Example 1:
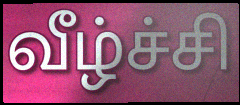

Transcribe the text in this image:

வீழ்ச்சி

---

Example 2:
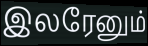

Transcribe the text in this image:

இலரேனும்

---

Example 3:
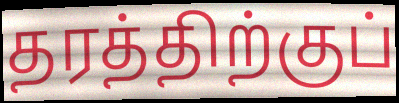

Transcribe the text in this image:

தரத்திற்குப்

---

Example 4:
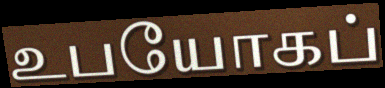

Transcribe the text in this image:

உபயோகப்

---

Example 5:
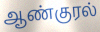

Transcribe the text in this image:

ஆண்குரல்